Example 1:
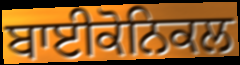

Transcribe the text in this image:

ਬਾਈਕੋਨਿਕਲ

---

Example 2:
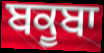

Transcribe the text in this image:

ਬਕੂਬਾ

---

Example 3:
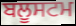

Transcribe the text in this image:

ਬਲੂਸਟਮ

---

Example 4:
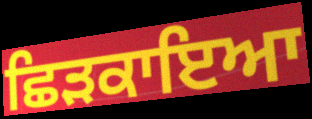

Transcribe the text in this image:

ਛਿੜਕਾਇਆ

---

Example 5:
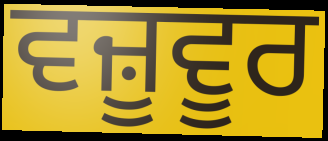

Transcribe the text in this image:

ਵਜ਼ੂਵੂਰ